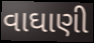
વાઘાણી